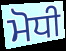
ਮੋਧੀ